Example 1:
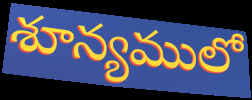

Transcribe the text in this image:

శూన్యములో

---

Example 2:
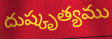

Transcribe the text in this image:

దుష్కృత్యము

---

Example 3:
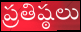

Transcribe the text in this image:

ప్రతిష్ఠలు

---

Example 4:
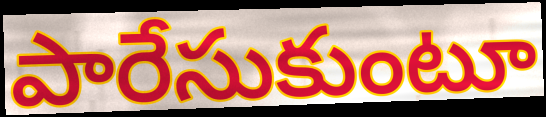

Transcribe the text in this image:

పారేసుకుంటూ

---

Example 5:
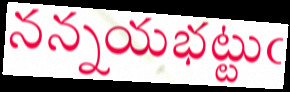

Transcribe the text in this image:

నన్నయభట్టుఁ